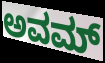
ಅವಮ್